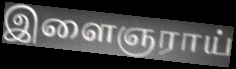
இளைஞராய்